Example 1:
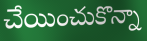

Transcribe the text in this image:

చేయించుకొన్నా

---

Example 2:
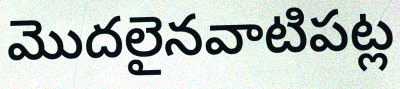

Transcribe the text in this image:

మొదలైనవాటిపట్ల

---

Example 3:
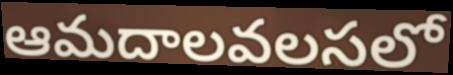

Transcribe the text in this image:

ఆమదాలవలసలో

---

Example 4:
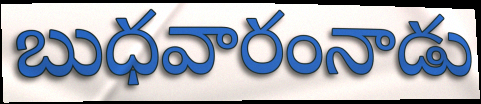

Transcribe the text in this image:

బుధవారంనాడు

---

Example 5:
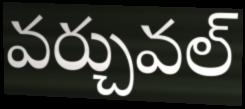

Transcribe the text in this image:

వర్చువల్